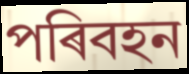
পৰিবহন